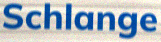
Schlange